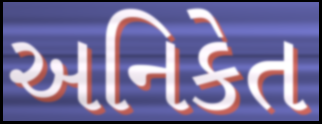
અનિકેત